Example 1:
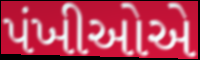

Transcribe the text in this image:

પંખીઓએ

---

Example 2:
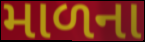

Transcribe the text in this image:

માળના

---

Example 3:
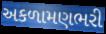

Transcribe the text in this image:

અકળામણભરી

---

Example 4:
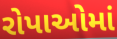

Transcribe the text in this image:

રોપાઓમાં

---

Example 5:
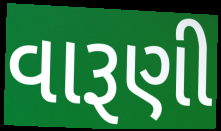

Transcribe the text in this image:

વારૂણી